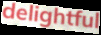
delightful